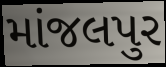
માંજલપુર